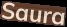
Saura